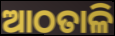
ଆଠତାଳି